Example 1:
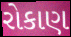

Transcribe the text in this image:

રોકાણ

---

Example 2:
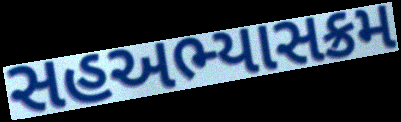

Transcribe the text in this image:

સહઅભ્યાસક્રમ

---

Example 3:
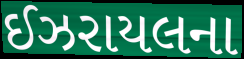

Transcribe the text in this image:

ઈઝરાયલના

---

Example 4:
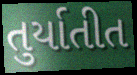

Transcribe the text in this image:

તુર્યાતીત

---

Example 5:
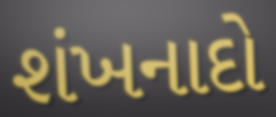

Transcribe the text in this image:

શંખનાદો